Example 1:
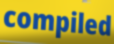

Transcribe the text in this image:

compiled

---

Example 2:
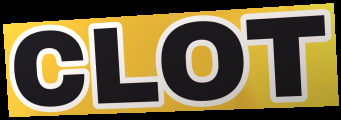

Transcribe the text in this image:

CLOT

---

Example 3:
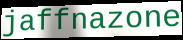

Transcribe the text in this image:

jaffnazone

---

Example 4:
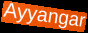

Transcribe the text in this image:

Ayyangar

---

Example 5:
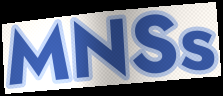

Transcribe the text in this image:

MNSs